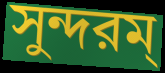
সুন্দরম্